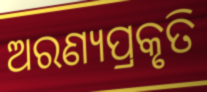
ଅରଣ୍ୟପ୍ରକୃତି